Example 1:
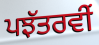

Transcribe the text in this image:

ਪਝੱਤਰਵੀਂ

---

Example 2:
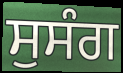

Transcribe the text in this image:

ਸੁਸੰਗ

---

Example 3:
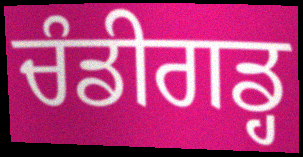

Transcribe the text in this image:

ਚੰਡੀਗਡ੍ਹ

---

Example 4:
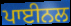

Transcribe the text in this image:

ਪਾਈਨਲ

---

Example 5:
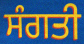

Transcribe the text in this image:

ਸੰਗਤੀ